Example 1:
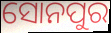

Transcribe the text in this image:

ସୋନପୁର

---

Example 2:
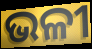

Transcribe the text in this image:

ଭଳୀ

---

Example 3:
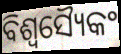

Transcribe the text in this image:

ବିଶ୍ୱସ୍ୟୈକଂ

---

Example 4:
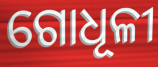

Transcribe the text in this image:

ଗୋଧୂଳୀ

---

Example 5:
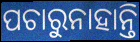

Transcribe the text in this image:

ପଚାରୁନାହାନ୍ତି